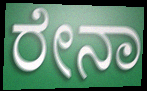
ರೇನಾ